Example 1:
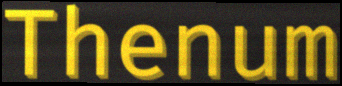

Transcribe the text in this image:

Thenum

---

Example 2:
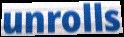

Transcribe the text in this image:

unrolls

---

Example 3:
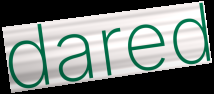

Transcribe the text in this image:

dared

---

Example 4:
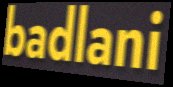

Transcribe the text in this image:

badlani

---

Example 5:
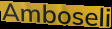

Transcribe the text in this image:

Amboseli